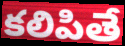
కలిపితే